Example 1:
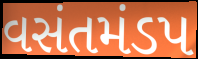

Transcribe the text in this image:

વસંતમંડપ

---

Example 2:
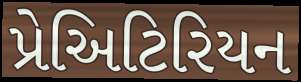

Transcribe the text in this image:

પ્રેઅિટિરિયન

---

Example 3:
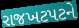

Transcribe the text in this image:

રાજખટપટને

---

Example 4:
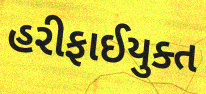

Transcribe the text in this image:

હરીફાઈયુક્ત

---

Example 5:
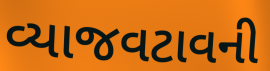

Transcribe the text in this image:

વ્યાજવટાવની